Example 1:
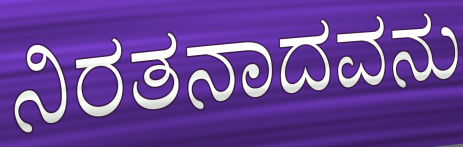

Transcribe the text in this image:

ನಿರತನಾದವನು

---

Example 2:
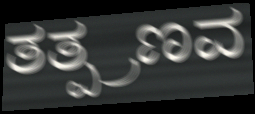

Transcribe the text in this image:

ತತ್ಪ್ರಣವ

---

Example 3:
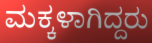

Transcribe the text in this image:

ಮಕ್ಕಳಾಗಿದ್ದರು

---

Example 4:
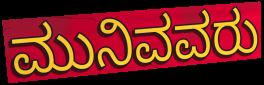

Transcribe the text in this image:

ಮುನಿವವರು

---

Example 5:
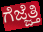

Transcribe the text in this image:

ಗೆಜ್ಜೆತ್ತಿ